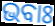
ଭବାଃ